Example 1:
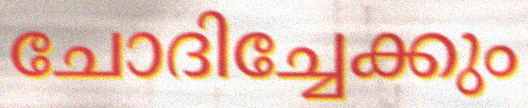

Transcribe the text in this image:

ചോദിച്ചേക്കും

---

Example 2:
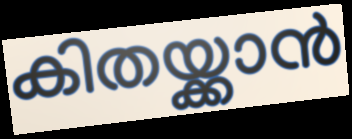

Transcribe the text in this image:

കിതയ്ക്കാൻ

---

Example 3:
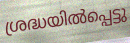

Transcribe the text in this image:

ശ്രദ്ധയിൽപ്പെട്ടു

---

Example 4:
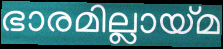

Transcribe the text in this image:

ഭാരമില്ലായ്മ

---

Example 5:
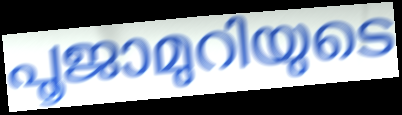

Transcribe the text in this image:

പൂജാമുറിയുടെ